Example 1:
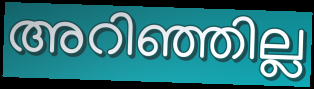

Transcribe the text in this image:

അറിഞ്ഞില്ല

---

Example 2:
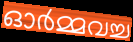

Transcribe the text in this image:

ഓർമ്മവച്ച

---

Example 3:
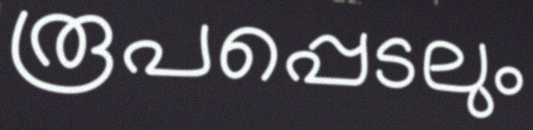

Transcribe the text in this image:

രൂപപ്പെടലും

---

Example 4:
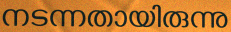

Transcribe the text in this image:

നടന്നതായിരുന്നു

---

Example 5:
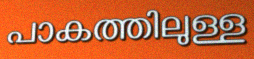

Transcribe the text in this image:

പാകത്തിലുള്ള